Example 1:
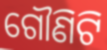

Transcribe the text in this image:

ଗୌଣିଟି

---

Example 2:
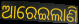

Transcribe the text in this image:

ଆରେଇଲାଣି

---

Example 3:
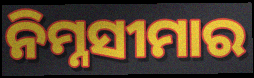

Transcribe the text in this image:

ନିମ୍ନସୀମାର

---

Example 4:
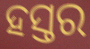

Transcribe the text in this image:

ହସ୍ତର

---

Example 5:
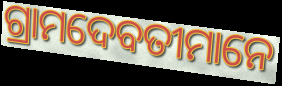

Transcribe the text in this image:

ଗ୍ରାମଦେବତୀମାନେ